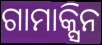
ଗାମାକ୍ସିନ